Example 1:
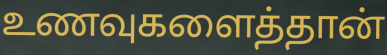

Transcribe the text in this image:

உணவுகளைத்தான்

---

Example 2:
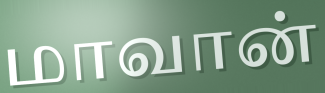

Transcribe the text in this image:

மாவான்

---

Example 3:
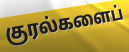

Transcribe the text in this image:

குரல்களைப்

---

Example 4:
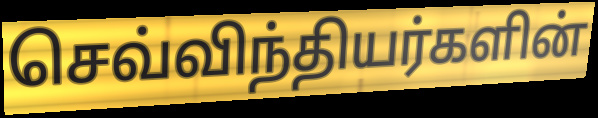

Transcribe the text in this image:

செவ்விந்தியர்களின்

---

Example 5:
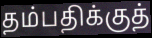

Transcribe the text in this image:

தம்பதிக்குத்